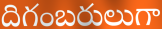
దిగంబరులుగా